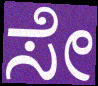
ಸೇ